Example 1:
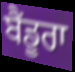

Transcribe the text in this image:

ਬੈਂਡੂਰਾ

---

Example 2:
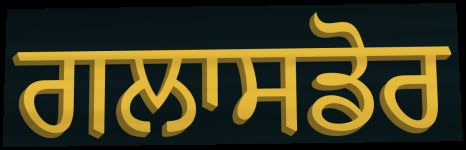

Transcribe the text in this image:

ਗਲਾਸਡੋਰ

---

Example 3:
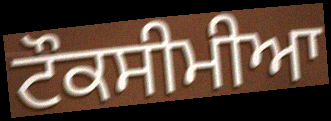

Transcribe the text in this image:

ਟੌਕਸੀਮੀਆ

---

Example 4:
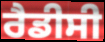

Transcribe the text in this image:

ਰੈਡੀਸੀ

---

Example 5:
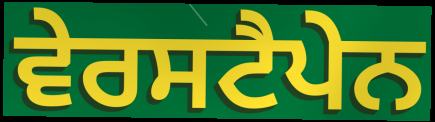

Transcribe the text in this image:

ਵੇਰਸਟੈਪੇਨ